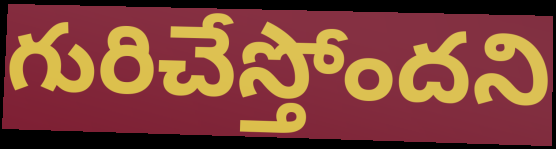
గురిచేస్తోందని